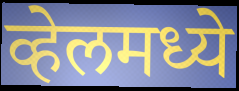
व्हेलमध्ये